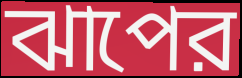
ঝাপের